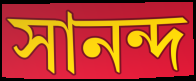
সানন্দ